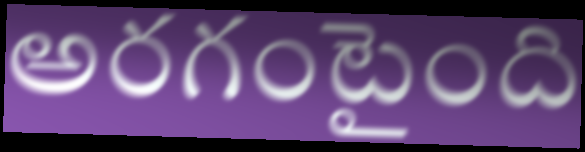
అరగంటైంది